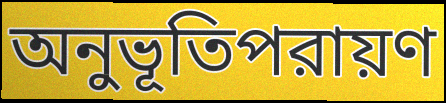
অনুভূতিপরায়ণ